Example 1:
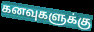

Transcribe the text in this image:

கனவுகளுக்கு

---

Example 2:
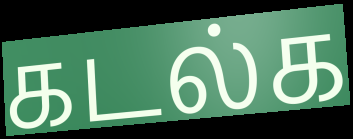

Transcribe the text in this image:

கடல்க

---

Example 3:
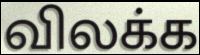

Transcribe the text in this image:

விலக்க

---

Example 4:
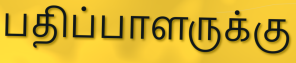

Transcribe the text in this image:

பதிப்பாளருக்கு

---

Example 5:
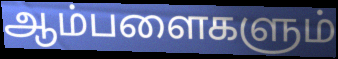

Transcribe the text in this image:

ஆம்பளைகளும்